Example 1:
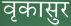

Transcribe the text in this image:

वृकासुर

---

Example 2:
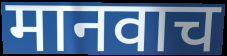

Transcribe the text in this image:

मानवाच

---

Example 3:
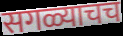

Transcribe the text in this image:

सगळ्याचच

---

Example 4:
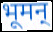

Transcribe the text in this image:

भूमन्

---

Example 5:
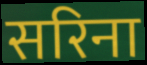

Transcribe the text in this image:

सरिना